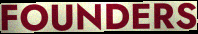
FOUNDERS